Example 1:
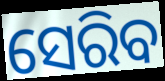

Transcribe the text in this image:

ସେରିବ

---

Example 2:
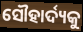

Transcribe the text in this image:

ସୌହାର୍ଦ୍ୟକୁ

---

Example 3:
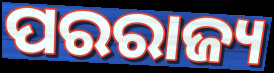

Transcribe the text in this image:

ପରରାଜ୍ୟ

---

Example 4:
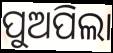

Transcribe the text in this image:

ପୁଅପିଲା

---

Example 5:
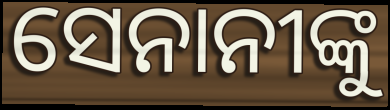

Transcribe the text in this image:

ସେନାନୀଙ୍କୁ